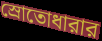
স্রোতোধারার